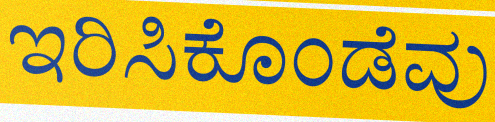
ಇರಿಸಿಕೊಂಡೆವು